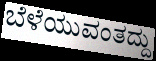
ಬೆಳೆಯುವಂತದ್ದು